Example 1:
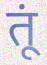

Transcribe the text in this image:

तूं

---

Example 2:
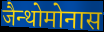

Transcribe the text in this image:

जैन्थोमोनास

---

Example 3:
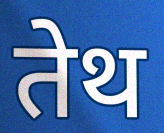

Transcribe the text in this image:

तेथ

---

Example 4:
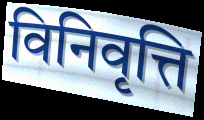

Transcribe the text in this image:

विनिवृत्ति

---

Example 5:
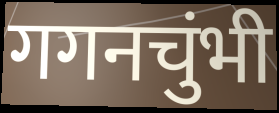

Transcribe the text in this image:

गगनचुंभी